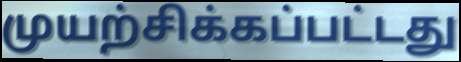
முயற்சிக்கப்பட்டது